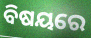
ବିଷୟରେ